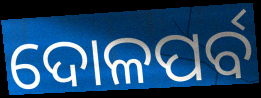
ଦୋଳପର୍ବ